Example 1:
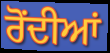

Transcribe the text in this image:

ਰੋਂਦੀਆਂ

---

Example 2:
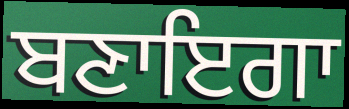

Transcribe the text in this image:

ਬਣਾਇਗਾ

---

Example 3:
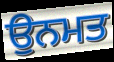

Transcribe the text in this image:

ਉਨਮਤ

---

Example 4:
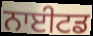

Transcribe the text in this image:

ਨਾਈਟਡ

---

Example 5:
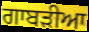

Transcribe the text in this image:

ਗਾਬੜੀਆ